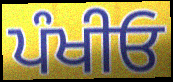
ਪੰਖੀਓ